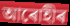
আৰোহীৰ